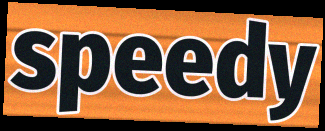
speedy